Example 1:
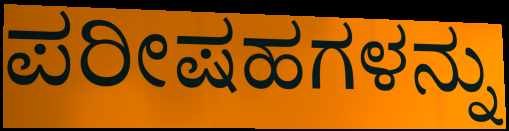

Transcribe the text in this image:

ಪರೀಷಹಗಳನ್ನು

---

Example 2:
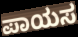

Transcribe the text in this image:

ಪಾಯಸ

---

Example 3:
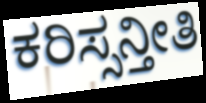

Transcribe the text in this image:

ಕರಿಸ್ಸನ್ತೀತಿ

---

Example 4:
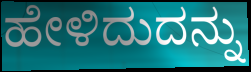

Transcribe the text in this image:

ಹೇಳಿದುದನ್ನು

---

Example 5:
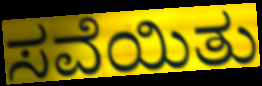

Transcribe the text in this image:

ಸವೆಯಿತು